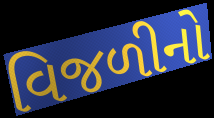
વિજળીનો